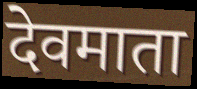
देवमाता